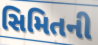
સિમિતની